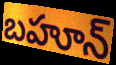
బహూన్